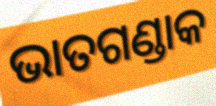
ଭାତଗଣ୍ଡାକ